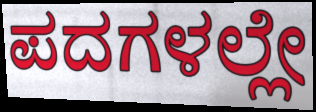
ಪದಗಳಲ್ಲೇ